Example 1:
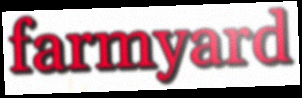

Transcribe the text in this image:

farmyard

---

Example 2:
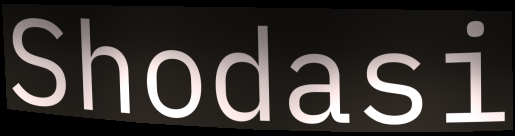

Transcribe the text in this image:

Shodasi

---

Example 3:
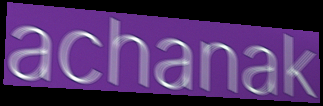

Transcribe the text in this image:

achanak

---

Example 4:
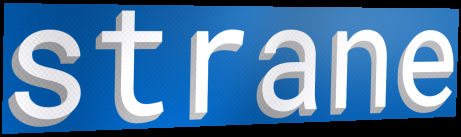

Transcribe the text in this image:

strane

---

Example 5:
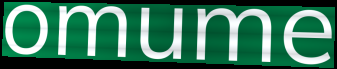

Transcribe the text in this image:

omume